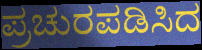
ಪ್ರಚುರಪಡಿಸಿದ